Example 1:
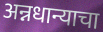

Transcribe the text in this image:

अन्नधान्याचा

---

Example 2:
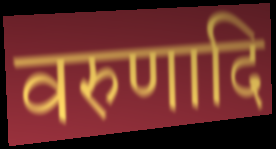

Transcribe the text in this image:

वरुणादि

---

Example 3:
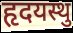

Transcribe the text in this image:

हृदयस्थु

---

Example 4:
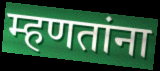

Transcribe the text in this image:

म्हणतांना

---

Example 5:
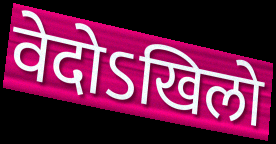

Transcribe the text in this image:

वेदोऽखिलो